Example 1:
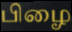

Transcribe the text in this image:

பிழை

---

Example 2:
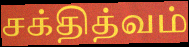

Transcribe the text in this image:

சக்தித்வம்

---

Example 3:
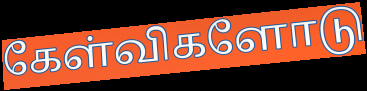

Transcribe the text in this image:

கேள்விகளோடு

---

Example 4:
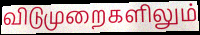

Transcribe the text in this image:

விடுமுறைகளிலும்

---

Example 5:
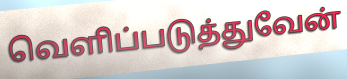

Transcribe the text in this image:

வெளிப்படுத்துவேன்